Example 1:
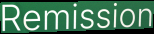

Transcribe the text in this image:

Remission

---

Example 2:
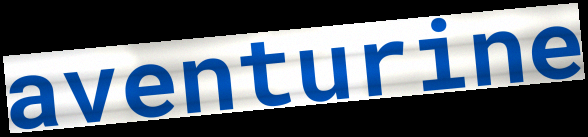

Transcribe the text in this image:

aventurine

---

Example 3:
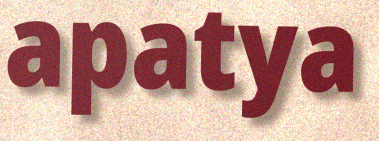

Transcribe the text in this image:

apatya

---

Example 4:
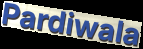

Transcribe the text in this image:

Pardiwala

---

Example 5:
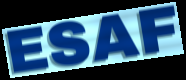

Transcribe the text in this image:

ESAF